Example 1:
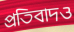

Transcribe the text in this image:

প্রতিবাদও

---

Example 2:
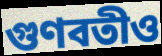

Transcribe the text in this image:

গুণবতীও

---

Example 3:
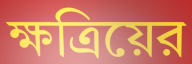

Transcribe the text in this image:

ক্ষত্রিয়ের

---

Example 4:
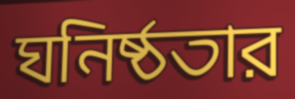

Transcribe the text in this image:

ঘনিষ্ঠতার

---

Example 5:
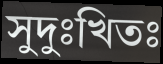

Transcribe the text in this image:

সুদুঃখিতঃ